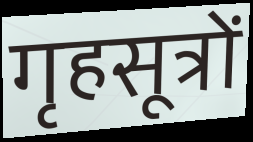
गृहसूत्रों